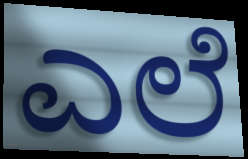
ಎಲೆ